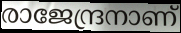
രാജേന്ദ്രനാണ്